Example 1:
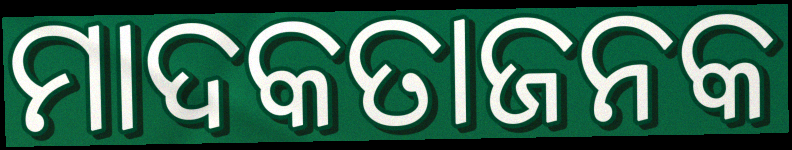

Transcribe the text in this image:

ମାଦକତାଜନକ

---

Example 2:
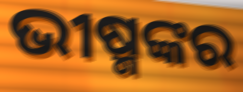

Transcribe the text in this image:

ଭୀଷ୍ମଙ୍କର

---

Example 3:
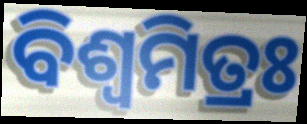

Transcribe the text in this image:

ବିଶ୍ବମିତ୍ରଃ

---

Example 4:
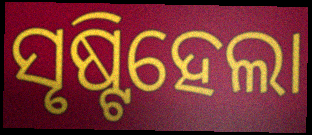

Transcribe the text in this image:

ସୃଷ୍ଟିହେଲା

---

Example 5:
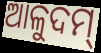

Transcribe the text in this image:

ଆଳୁଦମ୍